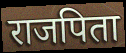
राजपिता